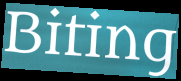
Biting